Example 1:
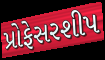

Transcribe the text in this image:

પ્રોફેસરશીપ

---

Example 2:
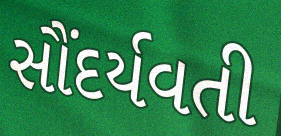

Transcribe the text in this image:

સૌંદર્યવતી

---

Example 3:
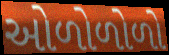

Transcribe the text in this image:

ઓળોળોળો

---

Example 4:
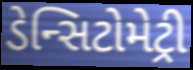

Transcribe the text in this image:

ડેન્સિટોમેટ્રી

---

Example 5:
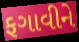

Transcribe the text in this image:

ફગાવીને